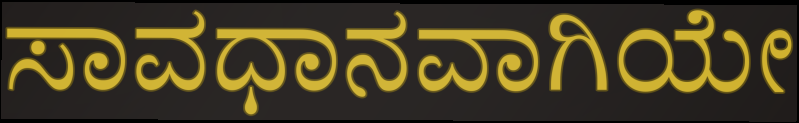
ಸಾವಧಾನವಾಗಿಯೇ